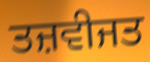
ਤਜ਼ਵੀਜਤ